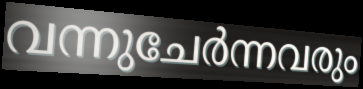
വന്നുചേർന്നവരും